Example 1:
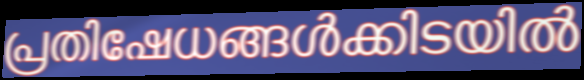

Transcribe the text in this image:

പ്രതിഷേധങ്ങൾക്കിടയിൽ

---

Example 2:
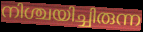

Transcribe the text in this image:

നിശ്ചയിച്ചിരുന്ന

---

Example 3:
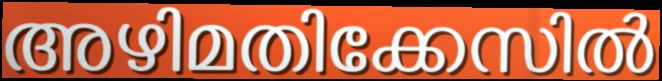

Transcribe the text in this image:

അഴിമതിക്കേസിൽ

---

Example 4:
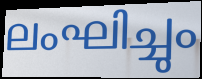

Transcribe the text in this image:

ലംഘിച്ചും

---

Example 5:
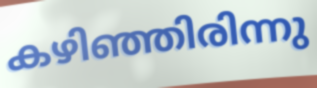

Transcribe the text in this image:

കഴിഞ്ഞിരിന്നു